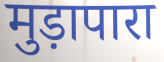
मुड़ापारा